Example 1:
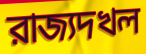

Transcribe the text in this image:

রাজ্যদখল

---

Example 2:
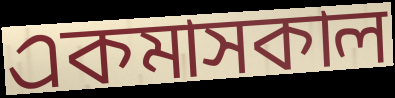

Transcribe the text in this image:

একমাসকাল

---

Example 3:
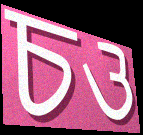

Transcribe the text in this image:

চও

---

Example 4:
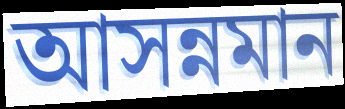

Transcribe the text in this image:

আসন্নমান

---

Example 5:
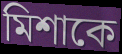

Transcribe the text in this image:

মিশাকে